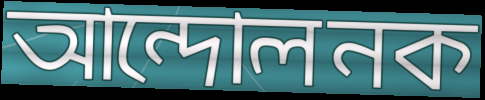
আন্দোলনক